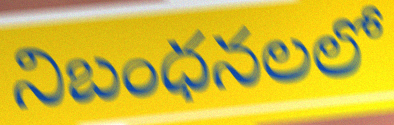
నిబంధనలలో